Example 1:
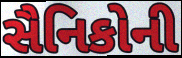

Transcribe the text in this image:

સૈનિકોની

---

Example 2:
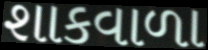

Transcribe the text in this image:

શાકવાળા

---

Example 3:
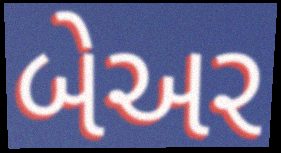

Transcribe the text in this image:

બેઅર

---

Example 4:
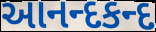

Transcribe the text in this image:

આનન્દકન્દ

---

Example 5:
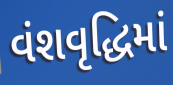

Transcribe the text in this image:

વંશવૃદ્ધિમાં